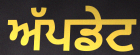
ਅੱਪਡੇਟ